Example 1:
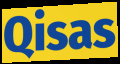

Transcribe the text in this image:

Qisas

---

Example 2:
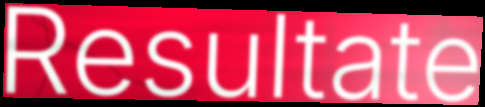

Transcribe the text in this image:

Resultate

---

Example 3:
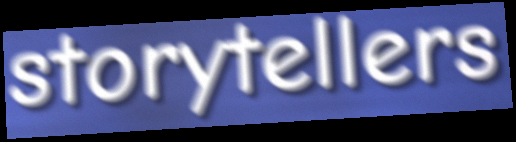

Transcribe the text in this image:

storytellers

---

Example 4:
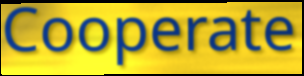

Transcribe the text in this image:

Cooperate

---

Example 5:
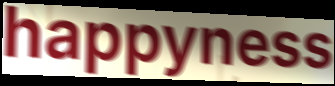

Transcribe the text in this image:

happyness